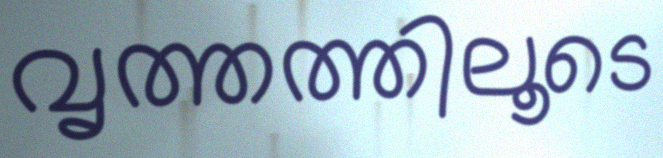
വൃത്തത്തിലൂടെ